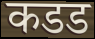
कडड